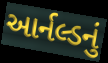
આર્નલ્ડનું